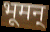
भूमन्